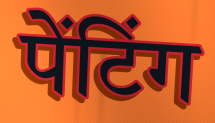
पेंटिंग